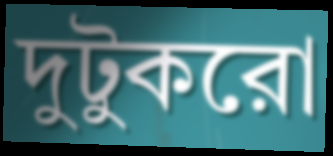
দুটুকরো